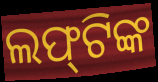
ଲଫ୍‌ଟିଙ୍କ